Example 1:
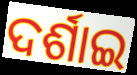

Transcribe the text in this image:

ଦର୍ଶାଇ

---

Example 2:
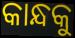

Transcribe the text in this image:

କାନ୍ଧକୁ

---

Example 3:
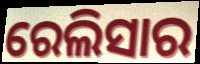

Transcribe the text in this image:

ରେଲିସାର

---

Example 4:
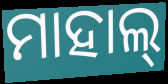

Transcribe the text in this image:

ମାହାଲ୍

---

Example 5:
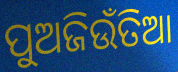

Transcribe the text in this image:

ପୁଅଜିଉଁତିଆ